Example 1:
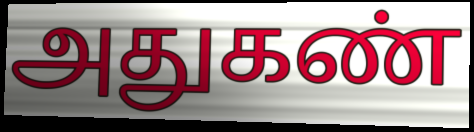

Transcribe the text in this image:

அதுகண்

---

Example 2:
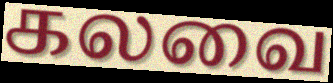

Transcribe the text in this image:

கலவை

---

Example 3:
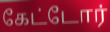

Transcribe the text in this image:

கேட்டோர்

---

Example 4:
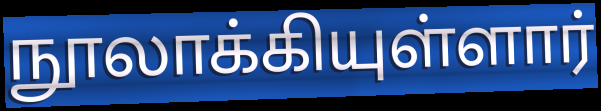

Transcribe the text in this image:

நூலாக்கியுள்ளார்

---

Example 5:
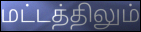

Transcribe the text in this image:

மட்டத்திலும்